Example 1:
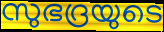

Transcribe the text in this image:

സുഭദ്രയുടെ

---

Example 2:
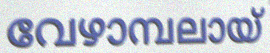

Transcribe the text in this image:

വേഴാമ്പലായ്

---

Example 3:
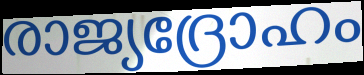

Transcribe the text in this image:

രാജ്യദ്രോഹം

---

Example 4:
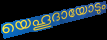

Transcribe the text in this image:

യെഹൂദായോടും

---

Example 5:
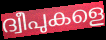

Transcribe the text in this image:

ദ്വീപുകളെ